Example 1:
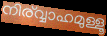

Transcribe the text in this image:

നിര്വ്വാഹമുള്ളൂ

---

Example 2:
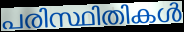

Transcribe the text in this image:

പരിസ്ഥിതികൾ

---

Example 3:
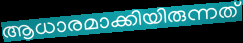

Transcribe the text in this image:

ആധാരമാക്കിയിരുന്നത്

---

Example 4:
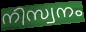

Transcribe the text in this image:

നിസ്വനം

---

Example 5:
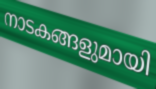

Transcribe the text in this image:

നാടകങ്ങളുമായി